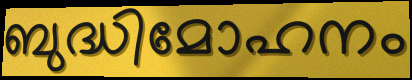
ബുദ്ധിമോഹനം